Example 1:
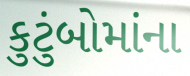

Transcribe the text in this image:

કુટુંબોમાંના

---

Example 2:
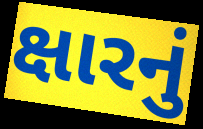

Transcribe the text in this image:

ક્ષારનું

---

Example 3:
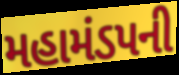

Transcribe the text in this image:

મહામંડપની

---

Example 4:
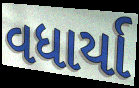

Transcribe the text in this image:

વધાર્યા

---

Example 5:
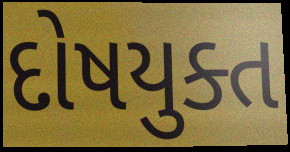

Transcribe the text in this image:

દોષયુક્ત